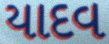
યાદવ